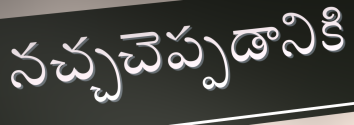
నచ్చచెప్పడానికి